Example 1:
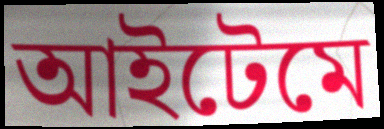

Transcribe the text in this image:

আইটেমে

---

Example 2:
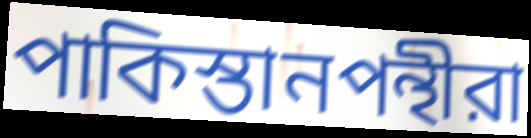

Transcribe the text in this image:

পাকিস্তানপন্থীরা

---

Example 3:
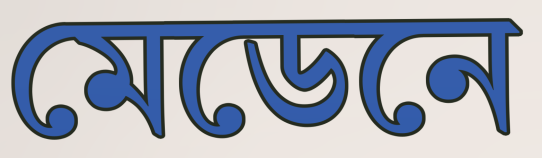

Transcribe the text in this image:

মেডেনে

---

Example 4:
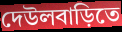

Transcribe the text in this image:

দেউলবাড়িতে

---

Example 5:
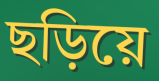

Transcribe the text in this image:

ছড়িয়ে